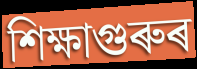
শিক্ষাগুৰুৰ